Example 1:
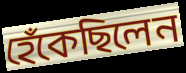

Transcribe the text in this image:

হেঁকেছিলেন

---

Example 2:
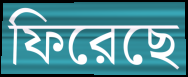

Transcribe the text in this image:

ফিরেছে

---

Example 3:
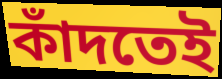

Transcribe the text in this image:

কাঁদতেই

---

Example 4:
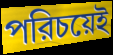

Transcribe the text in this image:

পরিচয়েই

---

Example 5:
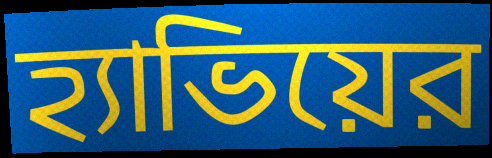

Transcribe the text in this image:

হ্যাভিয়ের